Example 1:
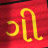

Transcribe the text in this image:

ગી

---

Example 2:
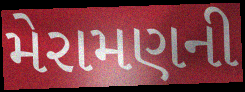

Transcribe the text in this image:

મેરામણની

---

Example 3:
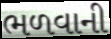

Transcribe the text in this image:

ભળવાની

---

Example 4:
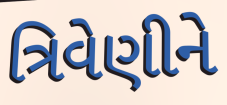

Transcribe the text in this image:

ત્રિવેણીને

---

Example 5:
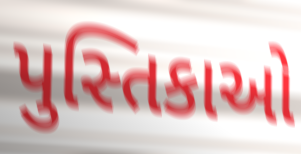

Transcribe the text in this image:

પુસ્તિકાઓ